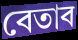
বেতাব